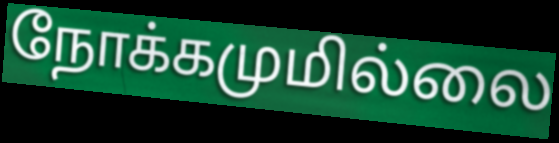
நோக்கமுமில்லை